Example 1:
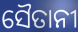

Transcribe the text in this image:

ସୈତାନୀ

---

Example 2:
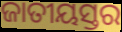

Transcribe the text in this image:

ଜାତୀୟସ୍ତର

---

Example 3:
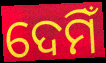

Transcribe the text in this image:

ଦେମିଁ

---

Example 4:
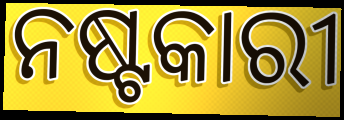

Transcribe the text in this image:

ନଷ୍ଟକାରୀ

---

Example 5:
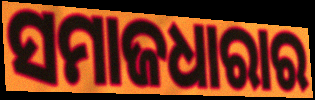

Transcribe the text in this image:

ସମାଜଧାରାର